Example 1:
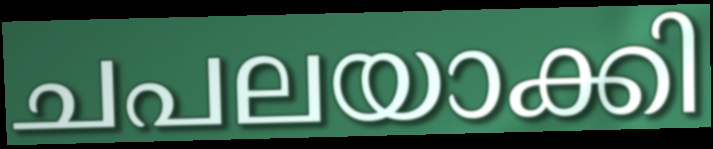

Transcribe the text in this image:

ചപലയാക്കി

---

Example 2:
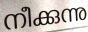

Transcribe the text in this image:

നീക്കുന്നു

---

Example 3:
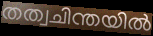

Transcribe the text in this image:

തത്വചിന്തയിൽ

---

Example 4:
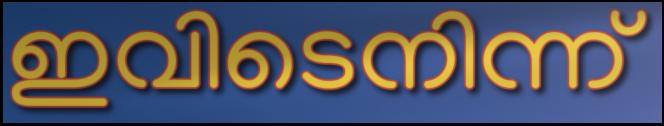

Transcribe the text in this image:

ഇവിടെനിന്ന്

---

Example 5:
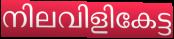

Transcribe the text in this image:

നിലവിളികേട്ട